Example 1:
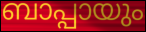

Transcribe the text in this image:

ബാപ്പായും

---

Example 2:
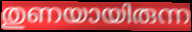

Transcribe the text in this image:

തുണയായിരുന്ന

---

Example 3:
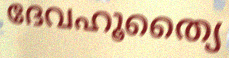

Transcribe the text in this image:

ദേവഹൂത്യൈ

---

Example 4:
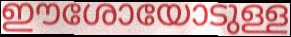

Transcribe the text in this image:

ഈശോയോടുള്ള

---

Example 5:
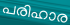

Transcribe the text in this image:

പരിഹാര